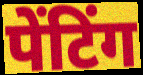
पेंटिंग